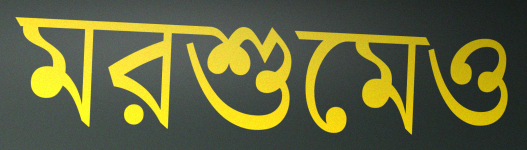
মরশুমেও